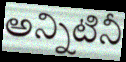
అన్నిటినీ